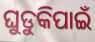
ଘୁଡୁକିପାଇଁ